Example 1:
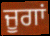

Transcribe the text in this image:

ਜੂਗਾਂ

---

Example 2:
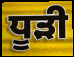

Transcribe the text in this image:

ਧੂੜੀ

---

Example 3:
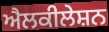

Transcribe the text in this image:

ਐਲਕੀਲੇਸ਼ਨ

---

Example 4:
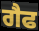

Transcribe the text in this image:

ਗੈਫ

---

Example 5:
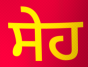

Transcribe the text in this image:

ਸੇਹ